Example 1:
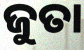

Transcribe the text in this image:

ଜୁତା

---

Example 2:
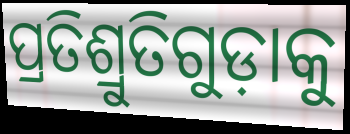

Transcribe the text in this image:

ପ୍ରତିଶ୍ରୁତିଗୁଡ଼ାକୁ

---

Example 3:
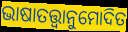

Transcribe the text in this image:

ଭାଷାତତ୍ତ୍ୱାନୁମୋଦିତ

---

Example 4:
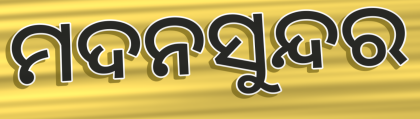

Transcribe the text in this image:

ମଦନସୁନ୍ଦର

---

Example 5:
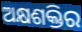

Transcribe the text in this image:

ଅକ୍ଷଶକ୍ତିର